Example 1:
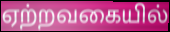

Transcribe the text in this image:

ஏற்றவகையில்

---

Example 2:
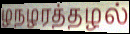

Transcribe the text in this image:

ழநழரத்தழல்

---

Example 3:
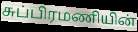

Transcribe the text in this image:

சுப்பிரமணியின்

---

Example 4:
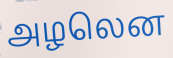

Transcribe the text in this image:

அழலென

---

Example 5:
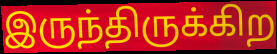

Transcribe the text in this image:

இருந்திருக்கிற